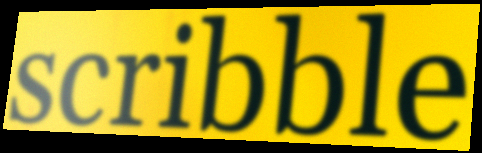
scribble